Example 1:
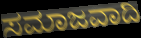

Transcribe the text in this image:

ಸಮಾಜವಾದಿ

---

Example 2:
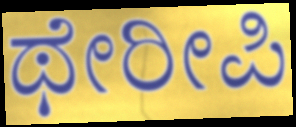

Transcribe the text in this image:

ಥೇರೀಪಿ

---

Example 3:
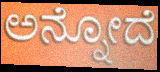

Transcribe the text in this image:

ಅನ್ನೋದೆ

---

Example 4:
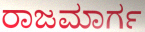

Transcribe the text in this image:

ರಾಜಮಾರ್ಗ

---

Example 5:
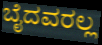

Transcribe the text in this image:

ಬೈದವರಲ್ಲ